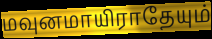
மவுனமாயிராதேயும்